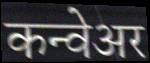
कन्वेअर